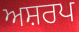
ਅਸ਼ਰਪ